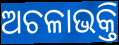
ଅଚଳାଭକ୍ତି